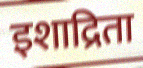
इशाद्रिता